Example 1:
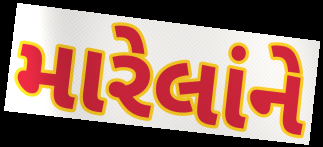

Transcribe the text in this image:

મારેલાંને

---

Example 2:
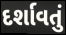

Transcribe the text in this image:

દર્શાવતું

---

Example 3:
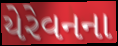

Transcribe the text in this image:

યેરેવનના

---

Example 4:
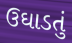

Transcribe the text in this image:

ઉઘાડતું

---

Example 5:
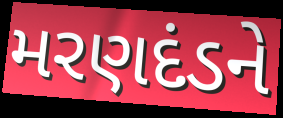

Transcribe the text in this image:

મરણદંડને